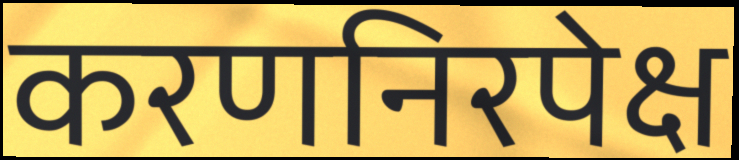
करणनिरपेक्ष